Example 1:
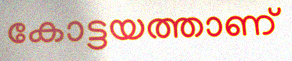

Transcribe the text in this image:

കോട്ടയത്താണ്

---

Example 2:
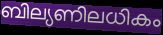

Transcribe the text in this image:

ബില്യണിലധികം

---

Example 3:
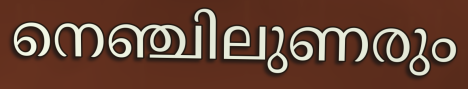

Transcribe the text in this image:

നെഞ്ചിലുണരും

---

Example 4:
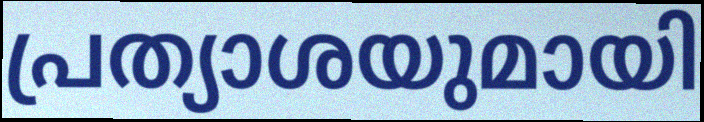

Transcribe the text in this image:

പ്രത്യാശയുമായി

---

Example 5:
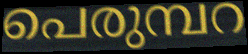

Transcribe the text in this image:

പെരുമ്പറ